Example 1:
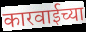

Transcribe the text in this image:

कारवाईच्या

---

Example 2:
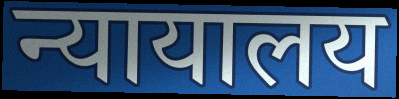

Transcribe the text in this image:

न्यायालय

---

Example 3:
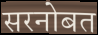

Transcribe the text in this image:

सरनोबत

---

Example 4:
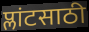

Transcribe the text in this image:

प्लांटसाठी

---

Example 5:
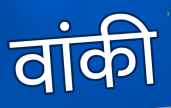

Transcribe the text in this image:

वांकी